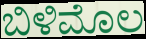
ಬಿಳಿಮೊಲ